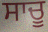
ਸਾਚੂ